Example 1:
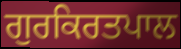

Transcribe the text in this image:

ਗੁਰਕਿਰਤਪਾਲ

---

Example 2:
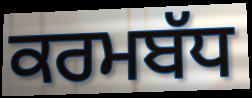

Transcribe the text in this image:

ਕਰਮਬੱਧ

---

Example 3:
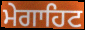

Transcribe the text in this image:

ਮੇਗਾਹਿਟ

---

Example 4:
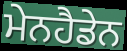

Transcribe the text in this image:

ਮੇਨਹੈਡੇਨ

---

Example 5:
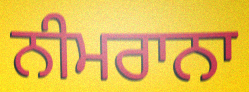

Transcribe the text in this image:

ਨੀਮਰਾਨਾ